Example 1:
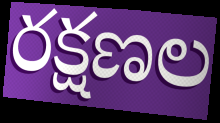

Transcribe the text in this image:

రక్షణల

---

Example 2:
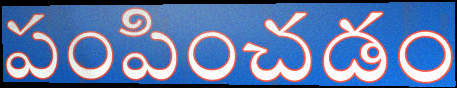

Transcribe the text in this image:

పంపించడం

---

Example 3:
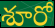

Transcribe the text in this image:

శూరో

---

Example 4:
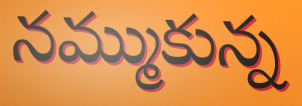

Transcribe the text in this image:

నమ్ముకున్న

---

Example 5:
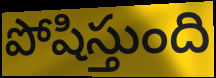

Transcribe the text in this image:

పోషిస్తుంది